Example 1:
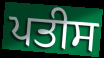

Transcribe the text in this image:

ਪਤੀਸ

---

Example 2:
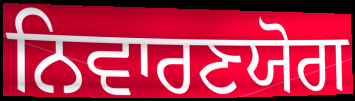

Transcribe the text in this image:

ਨਿਵਾਰਣਯੋਗ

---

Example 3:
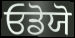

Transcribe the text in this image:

ਓਡੋਯੋ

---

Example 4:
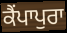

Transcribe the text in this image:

ਕੈਂਪਾਪੁਰਾ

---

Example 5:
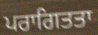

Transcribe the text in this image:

ਪਰਾਗਿਤਤਾ